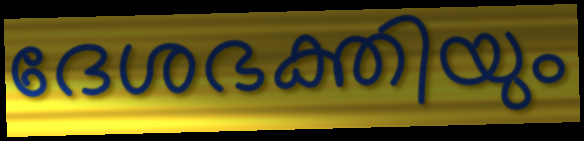
ദേശഭക്തിയും